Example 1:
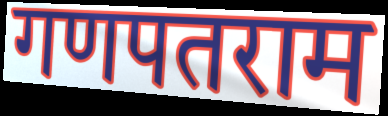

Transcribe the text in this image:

गणपतराम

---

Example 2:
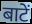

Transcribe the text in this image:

बाटें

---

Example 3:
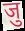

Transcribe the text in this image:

जु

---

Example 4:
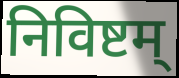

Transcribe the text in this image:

निविष्टम्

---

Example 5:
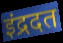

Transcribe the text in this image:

इंद्रदत